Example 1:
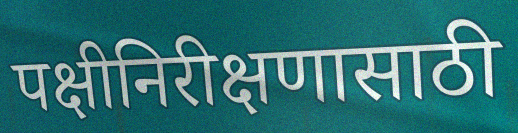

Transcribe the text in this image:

पक्षीनिरीक्षणासाठी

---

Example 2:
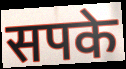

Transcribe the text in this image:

सपके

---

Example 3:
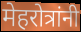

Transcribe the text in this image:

मेहरोत्रांनी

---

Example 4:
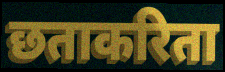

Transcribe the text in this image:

छताकरिता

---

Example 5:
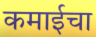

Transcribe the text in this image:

कमाईचा